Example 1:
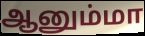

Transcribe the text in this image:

ஆனும்மா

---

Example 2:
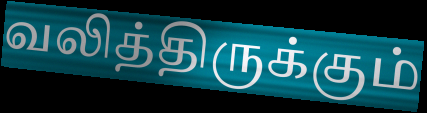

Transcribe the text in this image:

வலித்திருக்கும்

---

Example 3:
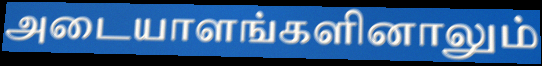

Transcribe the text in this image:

அடையாளங்களினாலும்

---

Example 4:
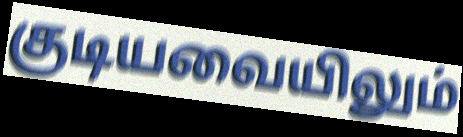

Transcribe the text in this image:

குடியவையிலும்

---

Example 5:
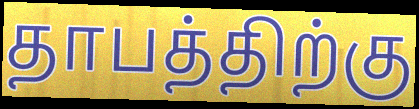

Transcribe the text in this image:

தாபத்திற்கு